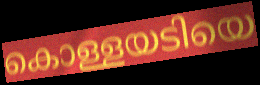
കൊള്ളയടിയെ